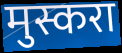
मुस्करा